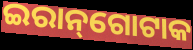
ଇରାନ୍‌ଗୋଟାକ